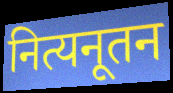
नित्यनूतन